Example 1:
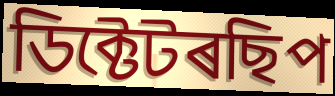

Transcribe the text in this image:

ডিক্টেটৰছিপ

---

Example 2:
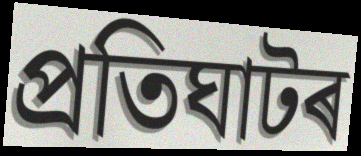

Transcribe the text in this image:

প্ৰতিঘাটৰ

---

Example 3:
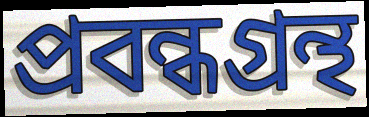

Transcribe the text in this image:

প্ৰবন্ধগ্ৰন্থ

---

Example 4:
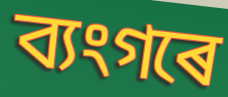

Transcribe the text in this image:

ব্যংগৰে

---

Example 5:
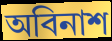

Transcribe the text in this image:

অবিনাশ